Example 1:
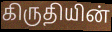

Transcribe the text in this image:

கிருதியின்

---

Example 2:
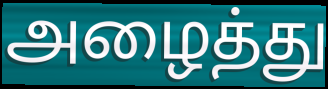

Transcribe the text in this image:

அழைத்து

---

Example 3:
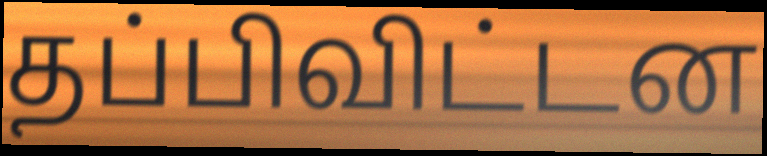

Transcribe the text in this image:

தப்பிவிட்டன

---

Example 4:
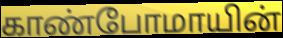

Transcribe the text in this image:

காண்போமாயின்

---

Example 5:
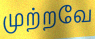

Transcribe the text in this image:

முற்றவே